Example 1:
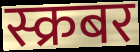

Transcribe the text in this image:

स्‍क्रबर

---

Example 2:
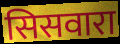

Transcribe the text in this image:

सिसवारा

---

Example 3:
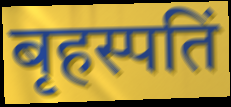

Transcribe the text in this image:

बृहस्पतिं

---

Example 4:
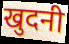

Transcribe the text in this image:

खुदनी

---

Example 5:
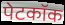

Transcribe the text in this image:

पेटकॉक